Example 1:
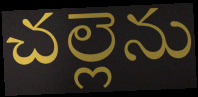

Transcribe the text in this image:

చల్లెను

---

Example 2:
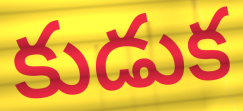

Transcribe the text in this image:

కుడుక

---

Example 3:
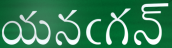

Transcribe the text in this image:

యనఁగన్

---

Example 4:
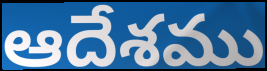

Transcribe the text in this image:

ఆదేశము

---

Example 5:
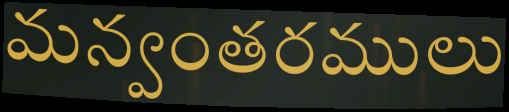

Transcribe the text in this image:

మన్వంతరములు